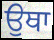
ਉਥਾ